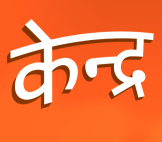
केन्द्र